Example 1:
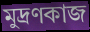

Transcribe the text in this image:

মুদ্রণকাজ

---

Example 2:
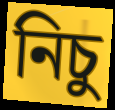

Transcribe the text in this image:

নিচু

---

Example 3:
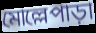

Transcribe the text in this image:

মোল্লেপাড়া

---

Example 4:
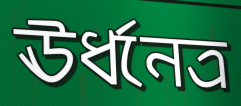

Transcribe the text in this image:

ঊর্ধনেত্র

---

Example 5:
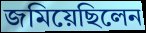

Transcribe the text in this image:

জমিয়েছিলেন